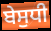
ਬੇਸੁਧੀ